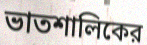
ভাতশালিকের